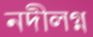
নদীলগ্ন